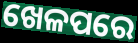
ଖେଳପରେ